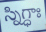
స్నిగ్ధాః